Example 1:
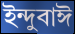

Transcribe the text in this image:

ইন্দুবাঈ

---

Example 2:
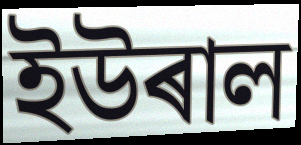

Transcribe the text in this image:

ইউৰাল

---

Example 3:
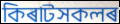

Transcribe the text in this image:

কিৰাটসকলৰ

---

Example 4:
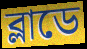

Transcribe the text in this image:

ব্লাডে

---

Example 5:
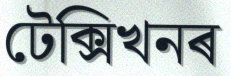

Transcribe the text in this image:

টেক্সিখনৰ